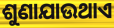
ଶୁଣାଯାଉଥାଏ